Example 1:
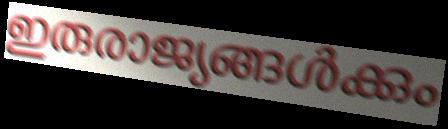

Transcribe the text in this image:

ഇരുരാജ്യങ്ങൾക്കും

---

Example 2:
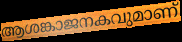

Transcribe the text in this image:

ആശങ്കാജനകവുമാണ്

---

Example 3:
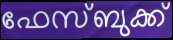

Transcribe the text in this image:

ഫേസ്ബുക്ക്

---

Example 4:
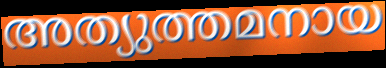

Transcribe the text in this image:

അത്യുത്തമനായ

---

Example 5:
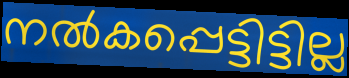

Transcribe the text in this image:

നൽകപ്പെട്ടിട്ടില്ല